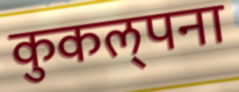
कुकल्पना